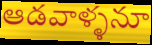
ఆడవాళ్ళనూ